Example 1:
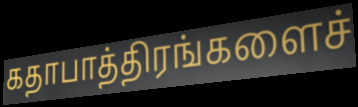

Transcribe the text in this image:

கதாபாத்திரங்களைச்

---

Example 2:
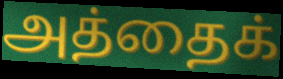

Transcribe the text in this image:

அத்தைக்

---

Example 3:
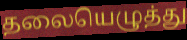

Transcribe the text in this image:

தலையெழுத்து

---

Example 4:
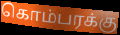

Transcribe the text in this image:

கொம்பரக்கு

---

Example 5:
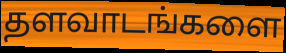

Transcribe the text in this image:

தளவாடங்களை